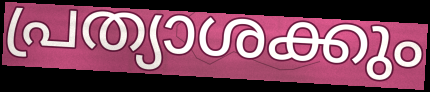
പ്രത്യാശക്കും